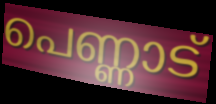
പെണ്ണാട്